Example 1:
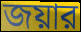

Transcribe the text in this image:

জয়ার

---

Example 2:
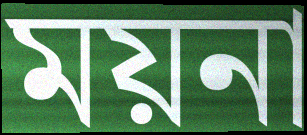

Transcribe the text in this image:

ময়না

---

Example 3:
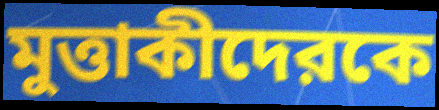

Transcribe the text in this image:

মুত্তাকীদেরকে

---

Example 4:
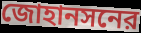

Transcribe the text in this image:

জোহানসনের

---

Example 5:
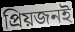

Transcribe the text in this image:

প্রিয়জনই